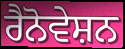
ਰੈਨੋਵੇਸ਼ਨ